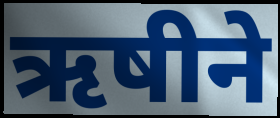
ऋषीने